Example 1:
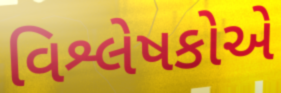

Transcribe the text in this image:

વિશ્લેષકોએ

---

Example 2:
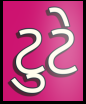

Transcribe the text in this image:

ટુટે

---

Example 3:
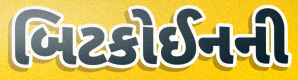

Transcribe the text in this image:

બિટકોઈનની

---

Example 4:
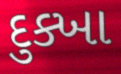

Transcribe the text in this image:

દુક્ખા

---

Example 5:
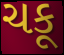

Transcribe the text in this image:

ચકૂ